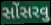
સોંસરવુ